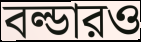
বল্ডারও